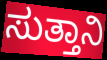
ಸುತ್ತಾನಿ